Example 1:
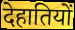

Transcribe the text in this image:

देहातियों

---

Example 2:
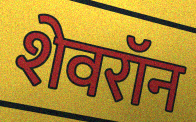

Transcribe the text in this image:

शेवरॉन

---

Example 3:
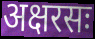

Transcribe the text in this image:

अक्षरसः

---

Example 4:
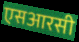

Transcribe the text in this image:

एसआरसी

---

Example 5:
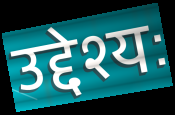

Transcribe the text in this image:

उद्देश्यः